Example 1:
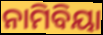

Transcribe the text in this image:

ନାମିବିୟା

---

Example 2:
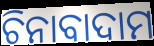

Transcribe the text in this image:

ଚିନାବାଦାମ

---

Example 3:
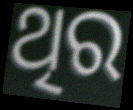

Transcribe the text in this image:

ଥିର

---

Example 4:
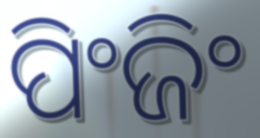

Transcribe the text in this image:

ପିଂଜିଂ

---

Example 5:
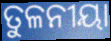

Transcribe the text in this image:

ତୁଳନୀୟା